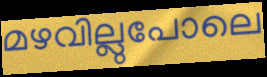
മഴവില്ലുപോലെ